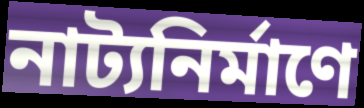
নাট্যনির্মাণে